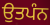
ਉਤਪੰਨ